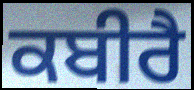
ਕਬੀਰੈ